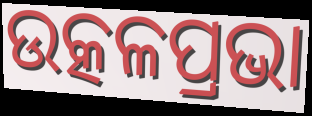
ଉତ୍କଳପ୍ରଭା